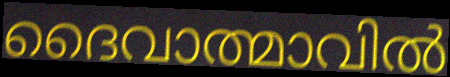
ദൈവാത്മാവിൽ